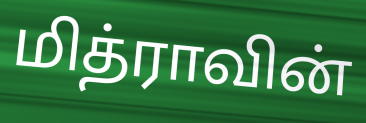
மித்ராவின்